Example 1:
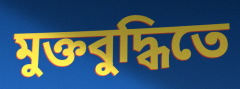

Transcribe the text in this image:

মুক্তবুদ্ধিতে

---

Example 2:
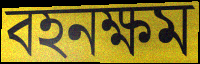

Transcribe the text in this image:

বহনক্ষম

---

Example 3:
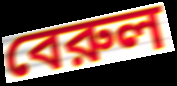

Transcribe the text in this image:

বেরুল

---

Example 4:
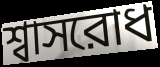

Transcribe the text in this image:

শ্বাসরোধ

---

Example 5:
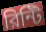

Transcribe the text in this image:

রিন্টি